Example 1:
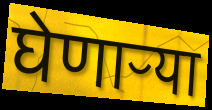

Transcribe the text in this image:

घेणाऱ्या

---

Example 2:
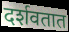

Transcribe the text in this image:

दर्शवतात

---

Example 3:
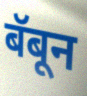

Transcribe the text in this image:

बॅबून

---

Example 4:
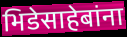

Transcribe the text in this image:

भिडेसाहेबांना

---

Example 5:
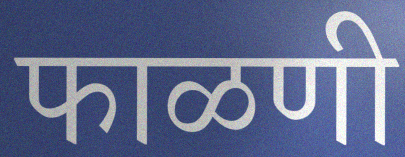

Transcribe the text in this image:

फाळणी